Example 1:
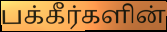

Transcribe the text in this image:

பக்கீர்களின்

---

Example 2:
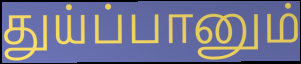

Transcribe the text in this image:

துய்ப்பானும்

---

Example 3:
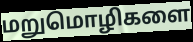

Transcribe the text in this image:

மறுமொழிகளை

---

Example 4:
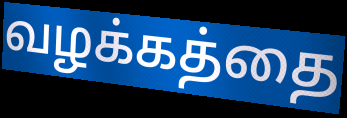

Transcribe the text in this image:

வழக்கத்தை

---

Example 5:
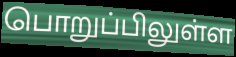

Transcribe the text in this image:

பொறுப்பிலுள்ள